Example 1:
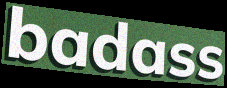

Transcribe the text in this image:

badass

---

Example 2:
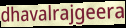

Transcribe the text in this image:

dhavalrajgeera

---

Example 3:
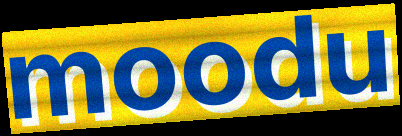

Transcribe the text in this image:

moodu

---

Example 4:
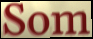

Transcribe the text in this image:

Som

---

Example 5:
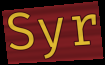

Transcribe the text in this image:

Syr